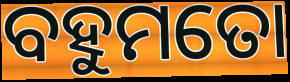
ବହୁମତୋ